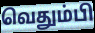
வெதும்பி